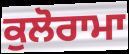
ਕੁਲੋਰਾਮਾ